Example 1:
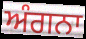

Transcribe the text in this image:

ਅੰਗਨਾ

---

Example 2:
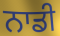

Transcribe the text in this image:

ਨਾਡੀ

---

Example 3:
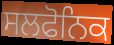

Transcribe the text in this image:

ਸਲਫੋਨਿਕ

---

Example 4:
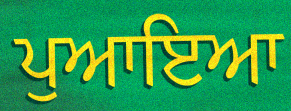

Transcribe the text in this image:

ਪੁਆਇਆ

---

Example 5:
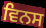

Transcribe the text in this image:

ਵਿਨਸ